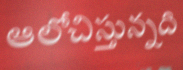
ఆలోచిస్తున్నది